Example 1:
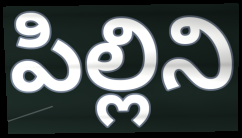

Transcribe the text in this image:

పిల్లిని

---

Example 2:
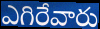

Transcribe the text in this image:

ఎగిరేవారు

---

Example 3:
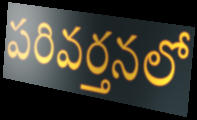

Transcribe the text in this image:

పరివర్తనలో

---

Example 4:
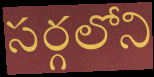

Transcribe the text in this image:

సర్గలోని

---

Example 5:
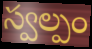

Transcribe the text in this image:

స్వల్పం